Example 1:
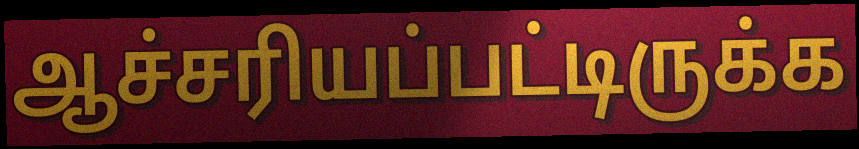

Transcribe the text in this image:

ஆச்சரியப்பட்டிருக்க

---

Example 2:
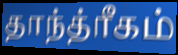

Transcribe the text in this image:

தாந்த்ரீகம்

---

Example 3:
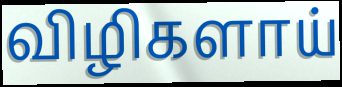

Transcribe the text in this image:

விழிகளாய்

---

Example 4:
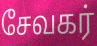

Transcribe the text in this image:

சேவகர்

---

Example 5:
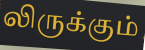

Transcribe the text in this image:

லிருக்கும்